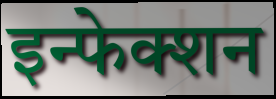
इन्‍फेक्‍शन